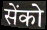
सेंको